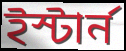
ইস্টার্ন